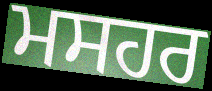
ਮਸਹਰ